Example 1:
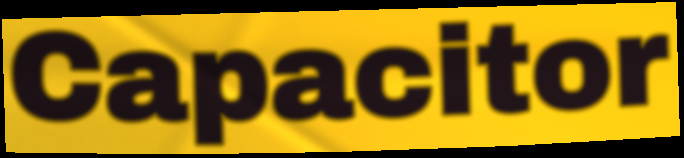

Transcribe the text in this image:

Capacitor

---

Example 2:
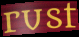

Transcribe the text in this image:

rust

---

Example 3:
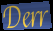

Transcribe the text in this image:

Derr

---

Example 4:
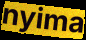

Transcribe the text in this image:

nyima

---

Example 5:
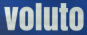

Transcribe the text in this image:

voluto